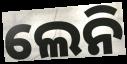
ଲେନି